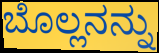
ಬೊಲ್ಲನನ್ನು